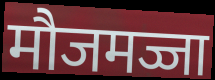
मौजमज्जा